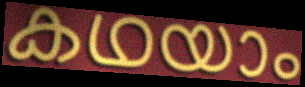
കഥയാം